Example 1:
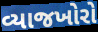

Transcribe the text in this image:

વ્યાજખોરો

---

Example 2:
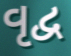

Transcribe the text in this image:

વૃદ્વ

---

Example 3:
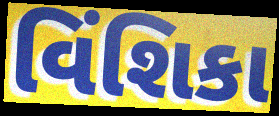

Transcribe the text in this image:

વિંશિકા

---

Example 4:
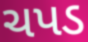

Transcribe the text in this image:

ચપડ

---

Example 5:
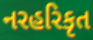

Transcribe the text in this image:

નરહરિકૃત